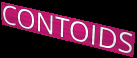
CONTOIDS